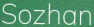
Sozhan